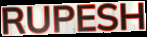
RUPESH